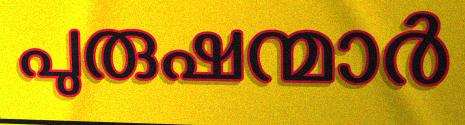
പുരുഷന്മാർ